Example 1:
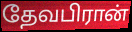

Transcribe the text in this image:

தேவபிரான்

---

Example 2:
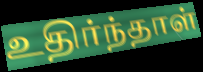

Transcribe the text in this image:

உதிர்ந்தாள்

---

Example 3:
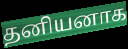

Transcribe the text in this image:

தனியனாக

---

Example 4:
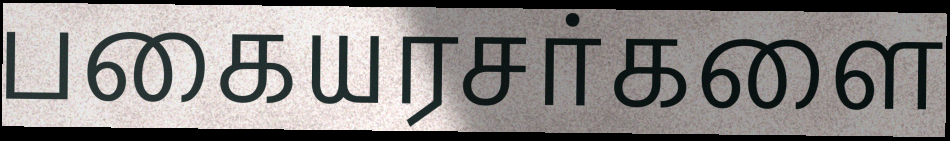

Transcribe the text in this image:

பகையரசர்களை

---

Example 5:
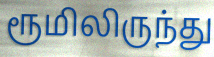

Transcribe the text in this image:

ரூமிலிருந்து